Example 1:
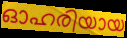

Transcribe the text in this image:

ഓഹരിയായ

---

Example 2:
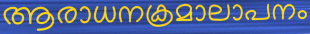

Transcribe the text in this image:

ആരാധനക്രമാലാപനം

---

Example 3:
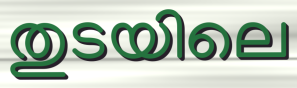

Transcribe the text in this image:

തുടയിലെ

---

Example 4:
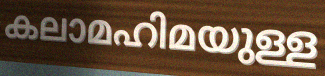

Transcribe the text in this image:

കലാമഹിമയുള്ള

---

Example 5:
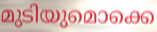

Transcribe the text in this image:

മുടിയുമൊക്കെ